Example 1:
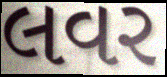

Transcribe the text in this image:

લવર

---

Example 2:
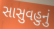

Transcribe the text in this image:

સાસુવહુનું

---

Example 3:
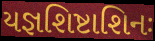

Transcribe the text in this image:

યજ્ઞશિષ્ટાશિનઃ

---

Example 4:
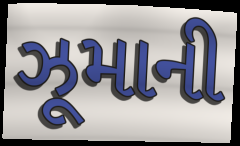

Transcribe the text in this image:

ઝૂમાની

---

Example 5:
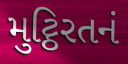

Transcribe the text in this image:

મુટ્ઠિરતનં